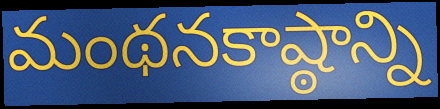
మంథనకాష్ఠాన్ని